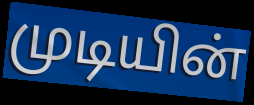
முடியின்